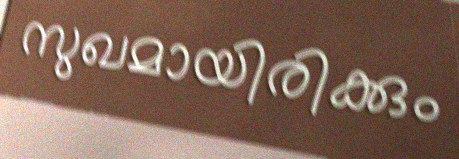
സുഖമായിരിക്കും